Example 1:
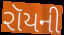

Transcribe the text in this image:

રૉયની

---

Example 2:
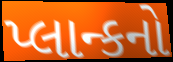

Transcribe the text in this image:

પ્લાન્કનો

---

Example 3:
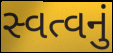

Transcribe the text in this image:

સ્વત્વનું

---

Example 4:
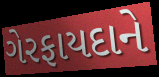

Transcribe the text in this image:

ગેરફાયદાને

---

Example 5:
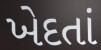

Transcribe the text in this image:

ખેદતાં